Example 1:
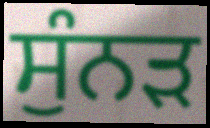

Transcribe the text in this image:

ਸੁੰਨੜ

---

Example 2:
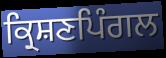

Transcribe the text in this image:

ਕ੍ਰਿਸ਼ਣਪਿੰਗਲ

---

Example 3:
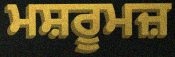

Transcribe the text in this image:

ਮਸ਼ਰੂਮਜ਼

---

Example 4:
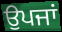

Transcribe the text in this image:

ਉਪਜਾਂ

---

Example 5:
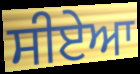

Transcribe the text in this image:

ਸੀਏਆ